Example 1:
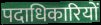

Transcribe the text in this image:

पदाधिकारियों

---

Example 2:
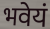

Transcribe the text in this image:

भवेयं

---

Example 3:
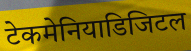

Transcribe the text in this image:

टेकमेनियाडिजिटल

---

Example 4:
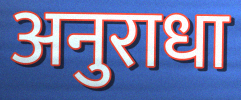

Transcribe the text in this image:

अनुराधा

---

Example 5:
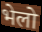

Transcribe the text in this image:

भेलो